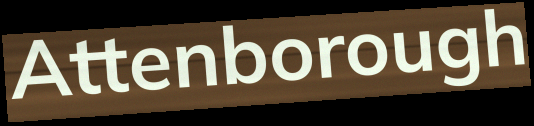
Attenborough